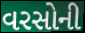
વરસોની